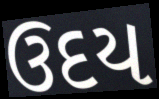
ઉદય